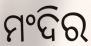
ମଂଦିର